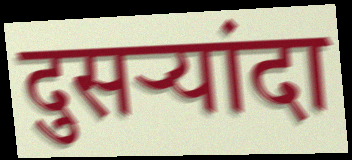
दुसर्‍यांदा